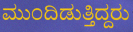
ಮುಂದಿಡುತ್ತಿದ್ದರು